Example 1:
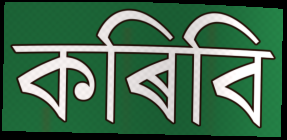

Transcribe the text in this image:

কৰিবি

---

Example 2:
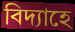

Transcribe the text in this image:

বিদ্যাহে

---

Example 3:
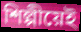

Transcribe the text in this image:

শিল্পীয়েই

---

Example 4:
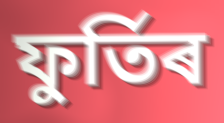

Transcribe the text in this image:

ফুৰ্তিৰ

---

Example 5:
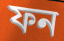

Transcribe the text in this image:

ফন